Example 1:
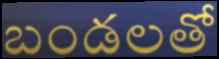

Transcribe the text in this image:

బండలతో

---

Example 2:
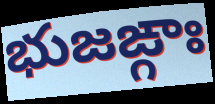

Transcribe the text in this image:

భుజఙ్గాః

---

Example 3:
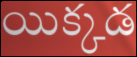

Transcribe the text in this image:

యిక్కడ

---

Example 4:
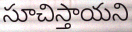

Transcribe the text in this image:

సూచిస్తాయని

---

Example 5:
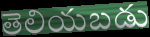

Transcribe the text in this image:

తెలియబడు